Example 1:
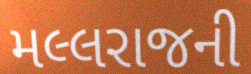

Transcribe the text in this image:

મલ્લરાજની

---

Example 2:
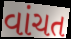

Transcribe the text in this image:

વાંચત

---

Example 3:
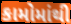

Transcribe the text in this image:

કામોમાંથી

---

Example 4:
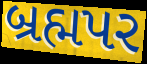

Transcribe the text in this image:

બ્રહ્મપર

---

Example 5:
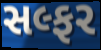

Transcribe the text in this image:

સલ્ફર